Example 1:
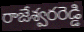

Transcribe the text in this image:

రాజేశ్వరరెడ్డి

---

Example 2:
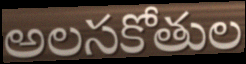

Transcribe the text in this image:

అలసకోతుల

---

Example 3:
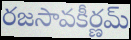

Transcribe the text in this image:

రజసావకీర్ణమ్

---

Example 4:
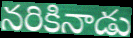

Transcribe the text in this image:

నరికినాడు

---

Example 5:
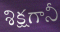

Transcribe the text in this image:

శిక్షగానీ